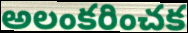
అలంకరించక